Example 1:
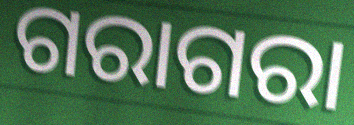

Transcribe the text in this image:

ଗରାଗରା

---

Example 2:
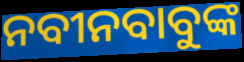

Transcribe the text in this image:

ନବୀନବାବୁଙ୍କ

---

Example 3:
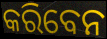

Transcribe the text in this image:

କରିବେନ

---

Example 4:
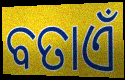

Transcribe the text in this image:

ବତାଏଁ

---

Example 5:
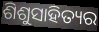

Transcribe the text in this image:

ଶିଶୁସାହିତ୍ୟର